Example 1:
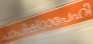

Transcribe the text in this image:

പാപിഷ്ഠാപേഹി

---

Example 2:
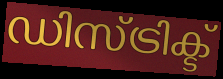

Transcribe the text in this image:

ഡിസ്ട്രിക്ട്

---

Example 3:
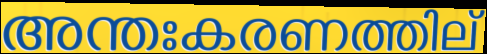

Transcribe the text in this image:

അന്തഃകരണത്തില്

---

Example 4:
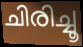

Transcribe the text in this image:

ചിരിച്ചൂ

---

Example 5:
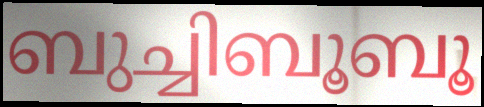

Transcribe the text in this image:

ബുച്ചിബൂബൂ